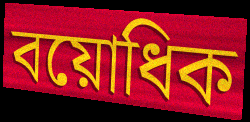
বয়োধিক